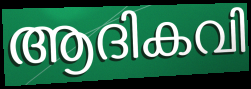
ആദികവി